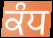
ਕੰਧ